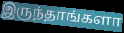
இருந்தாங்களா